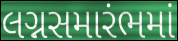
લગ્નસમારંભમાં